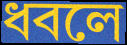
ধবলে